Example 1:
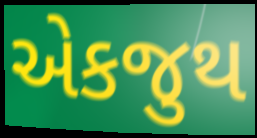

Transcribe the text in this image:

એકજુથ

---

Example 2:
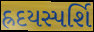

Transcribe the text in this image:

હ્રદયસ્પર્શિ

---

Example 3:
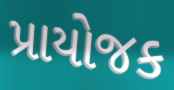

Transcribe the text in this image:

પ્રાયોજક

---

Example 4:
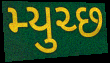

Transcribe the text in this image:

મ્યુચ્છ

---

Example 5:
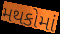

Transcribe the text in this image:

મથકોમાં